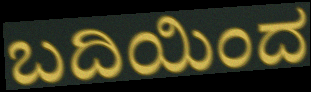
ಬದಿಯಿಂದ